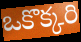
ఒకొక్కరి